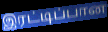
இரட்டிப்பான